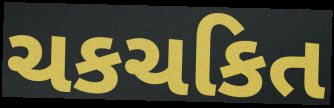
ચકચકિત